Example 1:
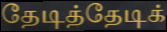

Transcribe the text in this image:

தேடித்தேடிக்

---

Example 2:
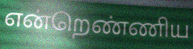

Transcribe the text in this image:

என்றெண்ணிய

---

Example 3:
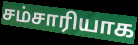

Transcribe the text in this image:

சம்சாரியாக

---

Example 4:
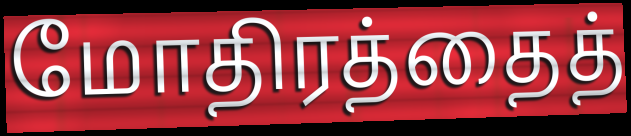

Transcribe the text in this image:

மோதிரத்தைத்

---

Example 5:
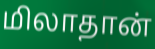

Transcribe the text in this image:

மிலாதான்